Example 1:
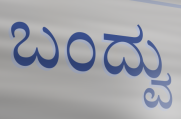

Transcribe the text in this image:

ಬಂದ್ವು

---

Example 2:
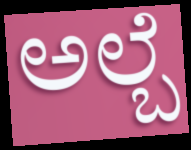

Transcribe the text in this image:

ಅಲ್ಬೆ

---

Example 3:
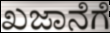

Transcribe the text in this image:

ಖಜಾನೆಗೆ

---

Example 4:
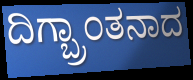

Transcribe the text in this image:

ದಿಗ್ಬ್ರಾಂತನಾದ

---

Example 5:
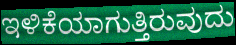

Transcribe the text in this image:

ಇಳಿಕೆಯಾಗುತ್ತಿರುವುದು